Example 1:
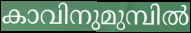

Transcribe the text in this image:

കാവിനുമുമ്പിൽ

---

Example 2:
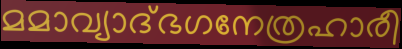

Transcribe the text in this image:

മമാവ്യാദ്ഭഗനേത്രഹാരീ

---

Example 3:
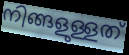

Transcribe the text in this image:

നിങ്ങളുള്ളത്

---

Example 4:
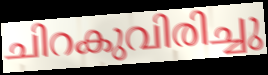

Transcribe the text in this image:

ചിറകുവിരിച്ചു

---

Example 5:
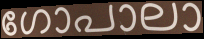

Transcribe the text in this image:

ഗോപാലാ